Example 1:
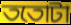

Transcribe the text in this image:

ততোটা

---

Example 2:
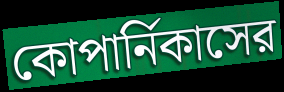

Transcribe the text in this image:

কোপার্নিকাসের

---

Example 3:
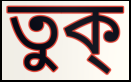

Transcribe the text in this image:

তুক্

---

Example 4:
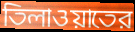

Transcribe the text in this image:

তিলাওয়াতের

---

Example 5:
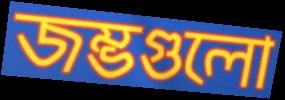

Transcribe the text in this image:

জম্ভগুলো